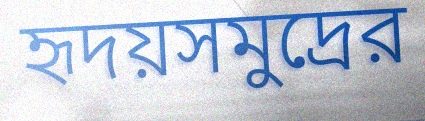
হৃদয়সমুদ্রের